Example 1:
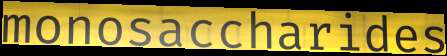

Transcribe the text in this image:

monosaccharides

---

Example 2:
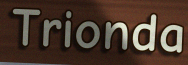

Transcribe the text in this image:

Trionda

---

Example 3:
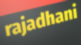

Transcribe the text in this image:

rajadhani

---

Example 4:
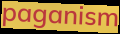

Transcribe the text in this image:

paganism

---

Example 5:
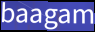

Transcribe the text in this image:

baagam